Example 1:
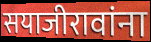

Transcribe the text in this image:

सयाजीरावांना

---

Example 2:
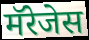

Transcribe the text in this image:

मॅरेजेस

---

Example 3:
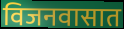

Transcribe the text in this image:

विजनवासात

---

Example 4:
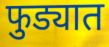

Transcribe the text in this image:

फुड्यात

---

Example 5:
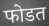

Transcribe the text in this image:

फोडत